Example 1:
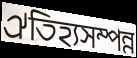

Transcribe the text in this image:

ঐতিহ্যসম্পন্ন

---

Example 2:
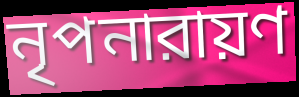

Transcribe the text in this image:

নৃপনারায়ণ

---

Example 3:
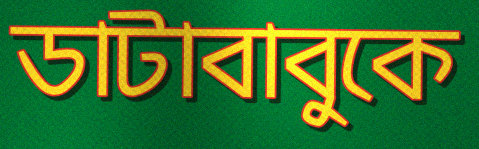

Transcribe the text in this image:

ডাটাবাবুকে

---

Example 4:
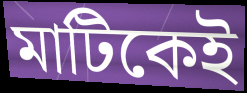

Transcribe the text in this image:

মাটিকেই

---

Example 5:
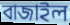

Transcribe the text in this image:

বাজাইল